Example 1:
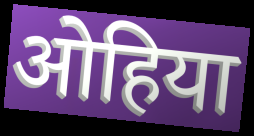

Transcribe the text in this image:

ओहिया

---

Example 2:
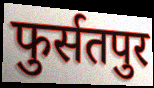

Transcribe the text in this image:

फुर्सतपुर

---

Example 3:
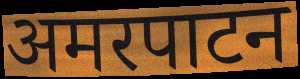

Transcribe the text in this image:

अमरपाटन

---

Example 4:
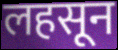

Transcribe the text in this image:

लहसून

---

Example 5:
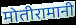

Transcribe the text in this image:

मोतीरामानी